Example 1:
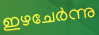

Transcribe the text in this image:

ഇഴചേർന്നു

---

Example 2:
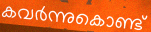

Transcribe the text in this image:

കവർന്നുകൊണ്ട്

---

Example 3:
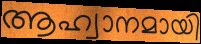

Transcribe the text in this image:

ആഹ്വാനമായി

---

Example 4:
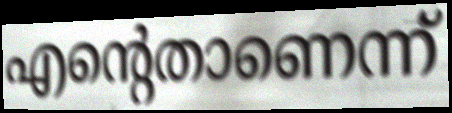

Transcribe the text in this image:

എന്റെതാണെന്ന്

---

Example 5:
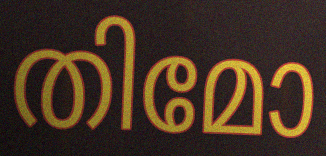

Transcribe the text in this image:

തിമോ